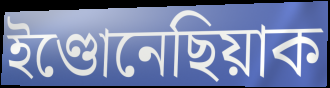
ইণ্ডোনেছিয়াক